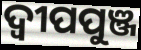
ଦ୍ୱୀପପୁଞ୍ଜ